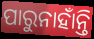
ପାରୁନାହାଁନ୍ତି